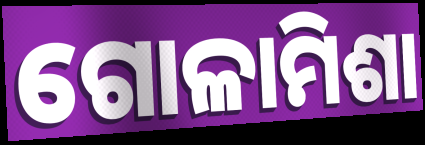
ଗୋଳାମିଶା